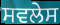
ਸਵਲੇਸ